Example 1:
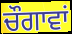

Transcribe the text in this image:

ਚੌਗਾਵਾਂ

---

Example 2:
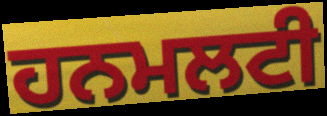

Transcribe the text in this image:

ਹਨਮਲਟੀ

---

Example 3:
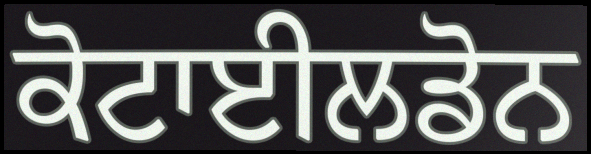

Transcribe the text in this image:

ਕੋਟਾਈਲਡੋਨ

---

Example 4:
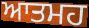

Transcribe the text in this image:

ਆਤਮਹ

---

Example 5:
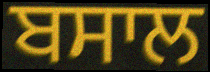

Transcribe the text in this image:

ਬਸਾਲ